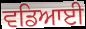
ਵਡਿਆਈ